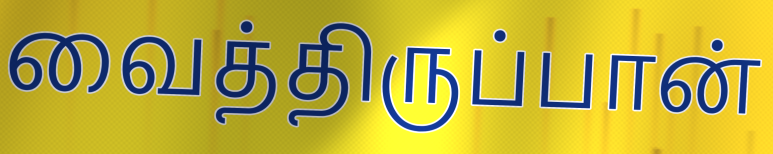
வைத்திருப்பான்